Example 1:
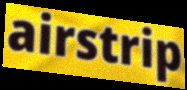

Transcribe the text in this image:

airstrip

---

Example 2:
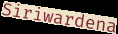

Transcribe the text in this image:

Siriwardena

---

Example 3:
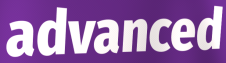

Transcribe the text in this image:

advanced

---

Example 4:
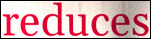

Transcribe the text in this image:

reduces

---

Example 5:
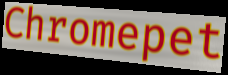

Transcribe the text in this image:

Chromepet